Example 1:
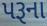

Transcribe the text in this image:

પરૂના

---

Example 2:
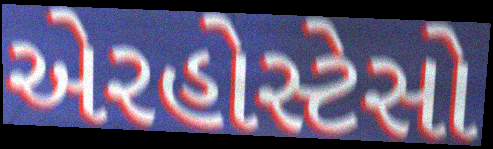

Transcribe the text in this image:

એરહોસ્ટેસો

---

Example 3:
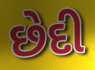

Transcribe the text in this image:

છેદી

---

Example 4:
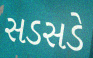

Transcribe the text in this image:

સડસડે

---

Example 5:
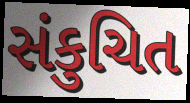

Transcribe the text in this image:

સંકુચિત